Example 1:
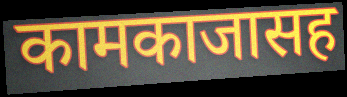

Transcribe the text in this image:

कामकाजासह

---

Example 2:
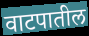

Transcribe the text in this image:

वाटपातील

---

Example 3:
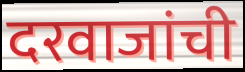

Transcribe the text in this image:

दरवाजांची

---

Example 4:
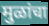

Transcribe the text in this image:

मुळांचा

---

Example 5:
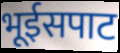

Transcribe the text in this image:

भूईसपाट